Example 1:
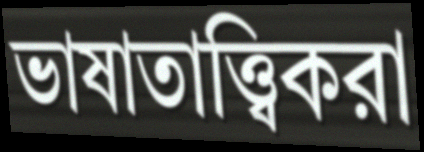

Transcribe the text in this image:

ভাষাতাত্ত্বিকরা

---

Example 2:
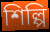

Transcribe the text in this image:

শিল্পি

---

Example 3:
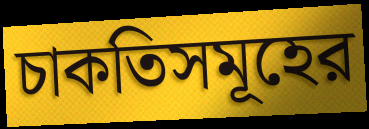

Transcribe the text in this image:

চাকতিসমূহের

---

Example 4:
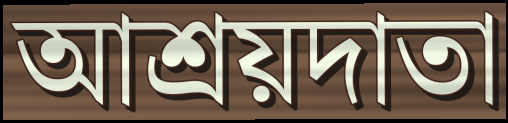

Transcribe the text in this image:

আশ্রয়দাতা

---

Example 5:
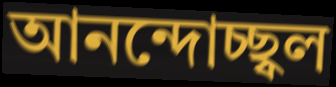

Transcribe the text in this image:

আনন্দোচ্ছ্বল